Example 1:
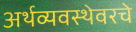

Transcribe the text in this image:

अर्थव्यवस्थेवरचे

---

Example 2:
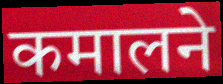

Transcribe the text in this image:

कमालने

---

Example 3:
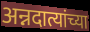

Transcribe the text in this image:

अन्नदात्यांच्या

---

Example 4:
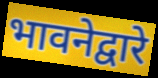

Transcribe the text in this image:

भावनेद्वारे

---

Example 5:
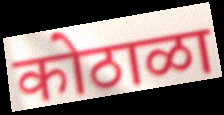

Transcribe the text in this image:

कोठाळा